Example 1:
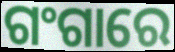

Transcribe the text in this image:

ଗଂଗାରେ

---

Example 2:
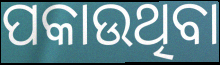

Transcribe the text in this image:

ପକାଉଥିବା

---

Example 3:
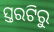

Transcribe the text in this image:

ସ୍ତରଟିରୁ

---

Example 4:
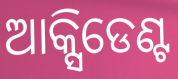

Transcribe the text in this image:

ଆକ୍ସିଡେଣ୍ଟ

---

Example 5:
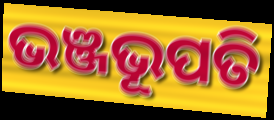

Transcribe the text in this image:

ଭଞ୍ଜଭୂପତି